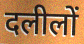
दलीलों